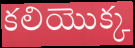
కలియొక్క